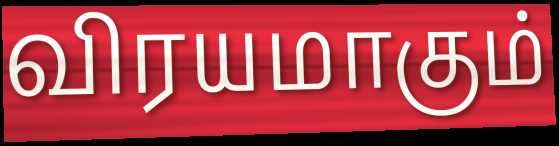
விரயமாகும்